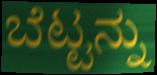
ಬೆಟ್ಟನ್ನು